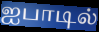
ஐபாடில்